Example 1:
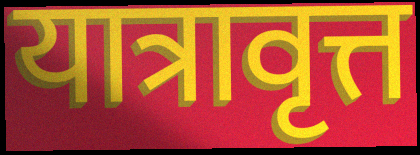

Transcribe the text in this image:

यात्रावृत्त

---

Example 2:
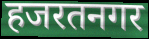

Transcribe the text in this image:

हजरतनगर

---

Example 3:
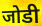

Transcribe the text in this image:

जोडी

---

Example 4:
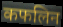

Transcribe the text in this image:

कफलिन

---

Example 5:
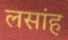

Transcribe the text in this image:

लसांह